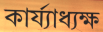
কার্য্যাধ্যক্ষ